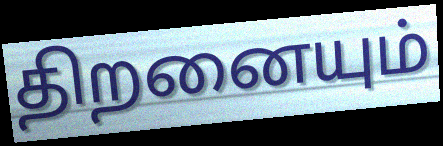
திறனையும்